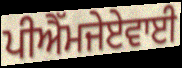
ਪੀਐੱਮਜੇਏਵਾਈ